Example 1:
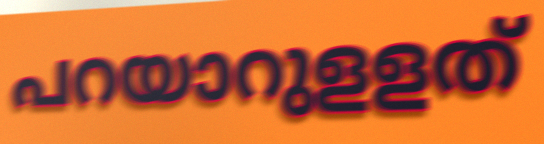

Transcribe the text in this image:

പറയാറുളളത്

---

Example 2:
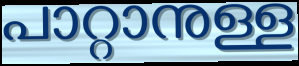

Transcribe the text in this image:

പാറ്റാനുള്ള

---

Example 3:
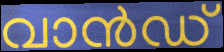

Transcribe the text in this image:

വാൻഡ്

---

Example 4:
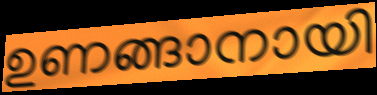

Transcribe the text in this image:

ഉണങ്ങാനായി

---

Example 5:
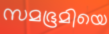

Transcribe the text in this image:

സമഭൂമിയെ